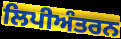
ਲਿਪੀਅੰਤਰਨ